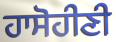
ਹਾਸੋਹੀਣੀ